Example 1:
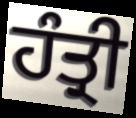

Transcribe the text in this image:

ਹੰਤ੍ਰੀ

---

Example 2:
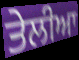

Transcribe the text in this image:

ਤੇਲੀਆ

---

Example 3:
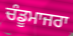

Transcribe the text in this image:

ਚੰਡੂਮਾਜਰਾ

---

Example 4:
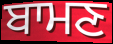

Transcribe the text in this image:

ਬਾਮਣ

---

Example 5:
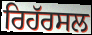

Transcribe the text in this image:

ਰਿਹੱਰਸਲ